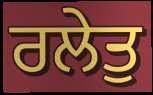
ਰਲੇਤੁ